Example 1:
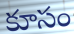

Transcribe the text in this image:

కూసం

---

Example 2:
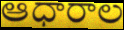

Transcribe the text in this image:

ఆధారాల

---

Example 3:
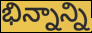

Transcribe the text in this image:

భిన్నాన్ని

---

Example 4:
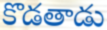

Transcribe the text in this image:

కొడతాడు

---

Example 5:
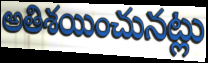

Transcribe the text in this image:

అతిశయించునట్లు